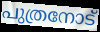
പുത്രനോട്